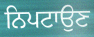
ਨਿਪਟਾਉਣ